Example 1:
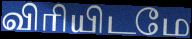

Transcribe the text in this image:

விரியிடமே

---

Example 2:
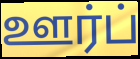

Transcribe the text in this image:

ஊர்ப்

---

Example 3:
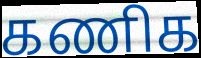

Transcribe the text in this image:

கணிக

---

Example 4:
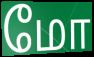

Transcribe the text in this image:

மோ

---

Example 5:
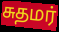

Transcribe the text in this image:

சுதமர்